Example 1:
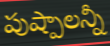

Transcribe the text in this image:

పుష్పాలన్నీ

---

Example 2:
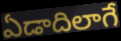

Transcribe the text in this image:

ఏడాదిలాగే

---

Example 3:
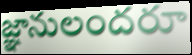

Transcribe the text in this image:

జ్ఞానులందరూ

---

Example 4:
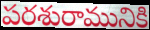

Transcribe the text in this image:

పరశురామునికి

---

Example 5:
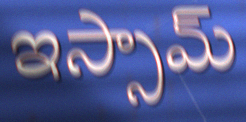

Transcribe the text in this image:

ఇస్సామ్